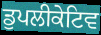
ਡੁਪਲੀਕੇਟਿਵ